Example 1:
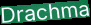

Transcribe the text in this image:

Drachma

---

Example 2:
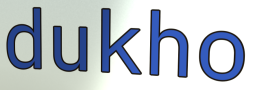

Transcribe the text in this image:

dukho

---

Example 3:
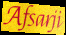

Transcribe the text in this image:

Afsarji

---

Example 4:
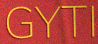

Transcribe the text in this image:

GYTI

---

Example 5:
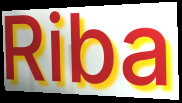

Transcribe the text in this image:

Riba